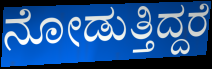
ನೋಡುತ್ತಿದ್ದರೆ